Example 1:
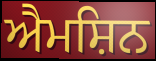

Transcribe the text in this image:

ਐਮਸ਼ਿਨ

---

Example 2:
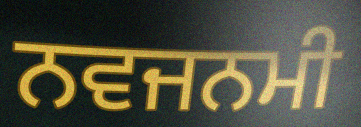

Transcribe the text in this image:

ਨਵਜਨਮੀ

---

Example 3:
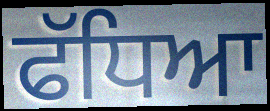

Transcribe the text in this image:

ਫੱਧਿਆ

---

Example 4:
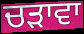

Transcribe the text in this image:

ਚੜਾਵਾ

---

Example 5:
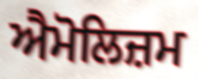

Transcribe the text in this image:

ਐਮੋਲਿਜ਼ਮ